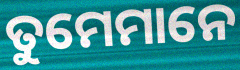
ତୁମେମାନେ